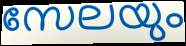
സേലയും